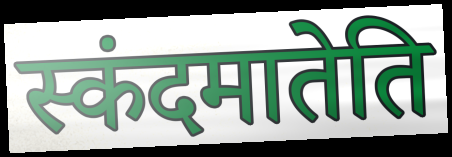
स्कंदमातेति